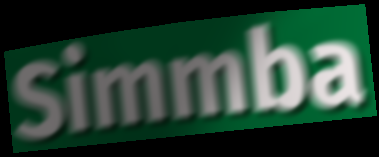
Simmba